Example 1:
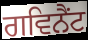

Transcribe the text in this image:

ਗਵਿਨੈਂਟ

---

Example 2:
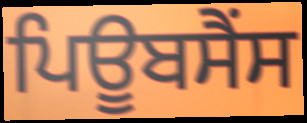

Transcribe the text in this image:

ਪਿਊਬਸੈਂਸ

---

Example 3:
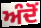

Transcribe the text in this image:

ਅੰਦੋਂ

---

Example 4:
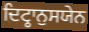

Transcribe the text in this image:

ਦਿਟ੍ਠਾਨੁਸਯੇਨ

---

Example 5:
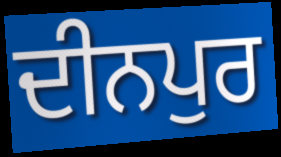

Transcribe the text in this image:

ਦੀਨਪੁਰ